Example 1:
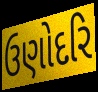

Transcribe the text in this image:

ઉણોદરિ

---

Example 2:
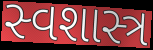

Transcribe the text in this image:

સ્વશાસ્ત્ર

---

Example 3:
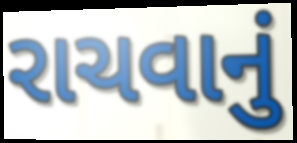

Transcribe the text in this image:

રાચવાનું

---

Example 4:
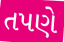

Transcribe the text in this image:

તપણે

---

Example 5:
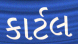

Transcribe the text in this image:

કાર્ટલ